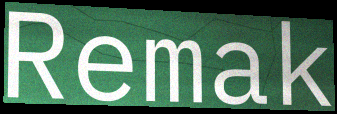
Remak